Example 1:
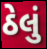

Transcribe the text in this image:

ઠેલું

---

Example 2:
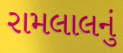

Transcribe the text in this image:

રામલાલનું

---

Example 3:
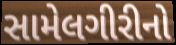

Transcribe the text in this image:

સામેલગીરીનો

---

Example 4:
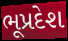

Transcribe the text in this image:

ભૂપ્રદેશ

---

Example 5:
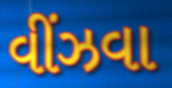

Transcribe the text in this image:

વીંઝવા